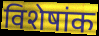
विशेषांक